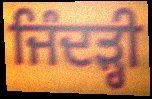
ਜਿੰਦੜ੍ਹੀ